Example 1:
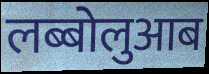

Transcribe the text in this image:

लब्बोलुआब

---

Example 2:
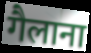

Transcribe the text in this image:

गैलाना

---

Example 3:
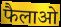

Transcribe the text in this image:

फैलाओ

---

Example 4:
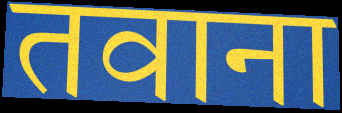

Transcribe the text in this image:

तवाना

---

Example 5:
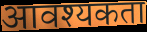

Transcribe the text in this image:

आवश्यकता